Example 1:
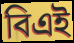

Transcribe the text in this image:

বিএই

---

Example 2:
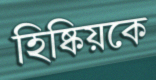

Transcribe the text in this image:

হিষ্কিয়কে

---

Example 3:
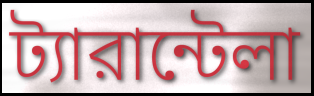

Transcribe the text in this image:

ট্যারান্টেলা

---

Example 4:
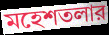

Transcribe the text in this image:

মহেশতলার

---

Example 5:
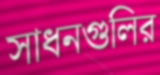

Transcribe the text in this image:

সাধনগুলির